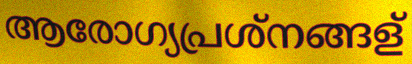
ആരോഗ്യപ്രശ്നങ്ങള്